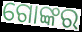
ଗୋଙ୍କର